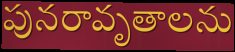
పునరావృతాలను